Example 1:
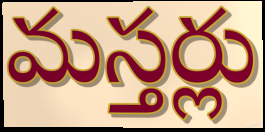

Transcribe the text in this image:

మస్తర్లు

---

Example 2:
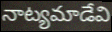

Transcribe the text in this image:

నాట్యమాడేవి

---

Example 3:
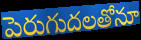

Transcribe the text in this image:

పెరుగుదలతోనూ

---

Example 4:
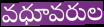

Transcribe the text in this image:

వధూవరుల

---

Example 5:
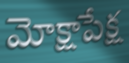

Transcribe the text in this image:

మోక్షాపేక్ష